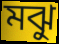
মঝু